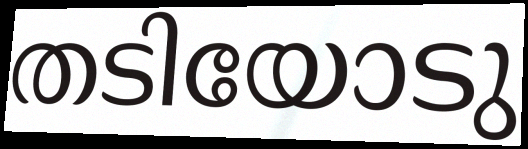
തടിയോടു